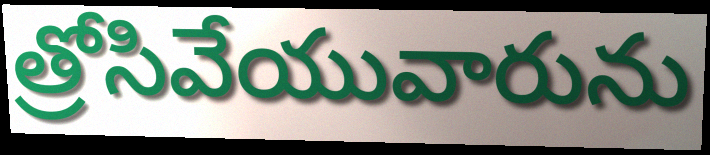
త్రోసివేయువారును